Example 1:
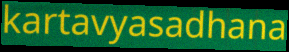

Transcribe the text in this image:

kartavyasadhana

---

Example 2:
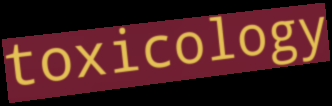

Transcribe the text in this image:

toxicology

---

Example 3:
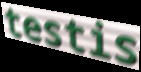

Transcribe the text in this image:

testis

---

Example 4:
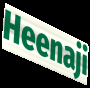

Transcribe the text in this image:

Heenaji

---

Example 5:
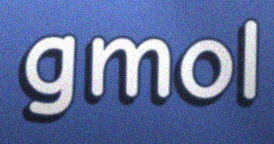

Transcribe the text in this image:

gmol